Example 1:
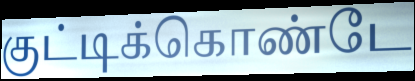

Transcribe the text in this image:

குட்டிக்கொண்டே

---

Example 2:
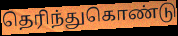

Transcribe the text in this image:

தெரிந்துகொண்டு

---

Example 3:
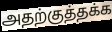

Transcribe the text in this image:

அதற்குத்தக்க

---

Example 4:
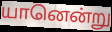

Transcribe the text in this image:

யானென்று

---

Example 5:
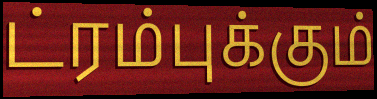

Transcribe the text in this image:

ட்ரம்புக்கும்